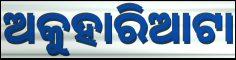
ଅକୁହାରିଆଟା